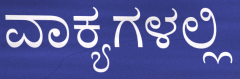
ವಾಕ್ಯಗಳಲ್ಲಿ